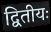
द्वितीयः